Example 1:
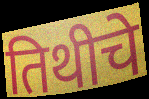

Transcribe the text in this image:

तिथीचे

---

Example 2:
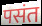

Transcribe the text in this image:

पसंत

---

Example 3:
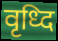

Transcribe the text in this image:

वृध्दि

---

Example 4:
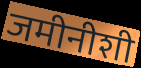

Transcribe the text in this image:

जमीनीशी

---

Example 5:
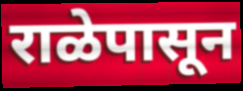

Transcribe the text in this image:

राळेपासून